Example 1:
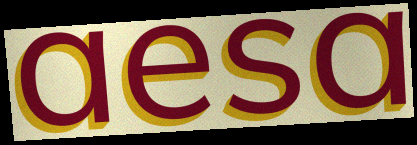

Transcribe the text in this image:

aesa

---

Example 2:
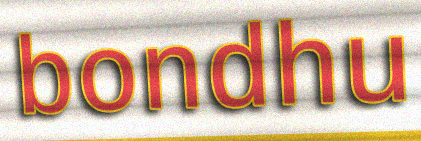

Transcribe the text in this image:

bondhu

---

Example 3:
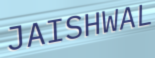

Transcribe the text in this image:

JAISHWAL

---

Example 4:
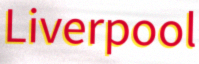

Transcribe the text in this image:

Liverpool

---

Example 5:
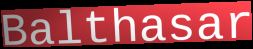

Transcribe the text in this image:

Balthasar